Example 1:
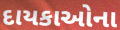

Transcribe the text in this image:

દાયકાઓના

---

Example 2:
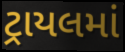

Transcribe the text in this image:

ટ્રાયલમાં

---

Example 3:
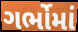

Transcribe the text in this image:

ગર્ભોમાં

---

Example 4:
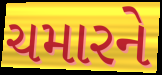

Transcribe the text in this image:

ચમારને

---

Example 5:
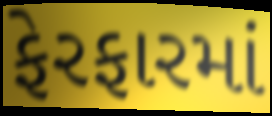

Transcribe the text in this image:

ફેરફારમાં